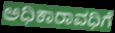
ಅಧಿಕಾರಾವಧಿಗೆ